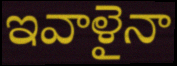
ఇవాళైనా